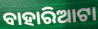
ବାହାରିଆଟା